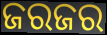
ଜରଜର